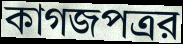
কাগজপত্রর